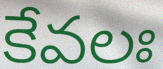
కేవలః